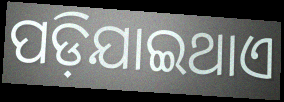
ପଡ଼ିଯାଇଥାଏ